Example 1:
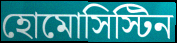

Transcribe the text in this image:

হোমোসিস্টিন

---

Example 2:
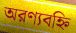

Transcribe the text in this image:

অরণ্যবহ্নি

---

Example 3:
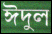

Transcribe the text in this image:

ঈদুল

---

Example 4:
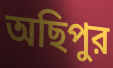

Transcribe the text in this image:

অছিপুর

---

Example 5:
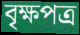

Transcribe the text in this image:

বৃক্ষপত্র